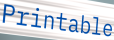
Printable